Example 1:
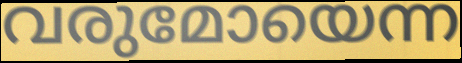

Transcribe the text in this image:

വരുമോയെന്ന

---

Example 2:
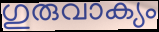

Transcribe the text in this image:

ഗുരുവാക്യം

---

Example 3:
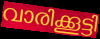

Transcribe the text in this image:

വാരിക്കൂട്ടി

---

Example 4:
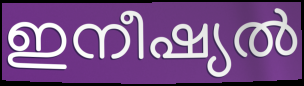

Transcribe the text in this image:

ഇനീഷ്യൽ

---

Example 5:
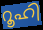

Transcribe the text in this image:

റൂഹി